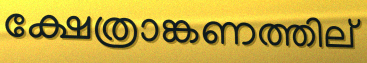
ക്ഷേത്രാങ്കണത്തില്